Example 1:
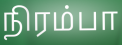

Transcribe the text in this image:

நிரம்பா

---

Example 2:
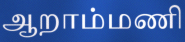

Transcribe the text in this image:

ஆறாம்மணி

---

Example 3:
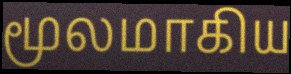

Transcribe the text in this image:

மூலமாகிய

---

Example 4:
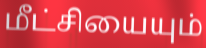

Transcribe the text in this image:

மீட்சியையும்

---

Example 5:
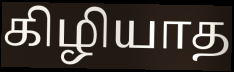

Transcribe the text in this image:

கிழியாத